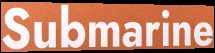
Submarine